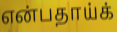
என்பதாய்க்